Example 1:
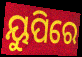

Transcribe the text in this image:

ୟୁପିରେ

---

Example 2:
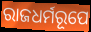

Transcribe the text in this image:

ରାଜଧର୍ମରୂପେ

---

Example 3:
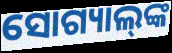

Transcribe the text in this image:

ସୋଗ୍ୟାଲ୍‌ଙ୍କ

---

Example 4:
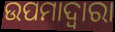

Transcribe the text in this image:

ଉପମାଦ୍ୱାରା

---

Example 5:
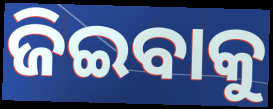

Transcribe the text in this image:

ଜିଇବାକୁ